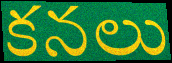
కనలు